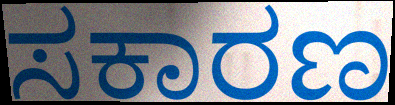
ಸಕಾರಣ